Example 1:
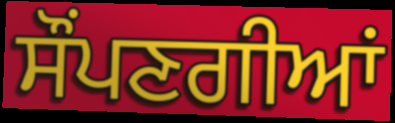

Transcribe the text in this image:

ਸੌਂਪਣਗੀਆਂ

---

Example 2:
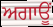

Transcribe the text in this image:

ਅਗਾਊਂ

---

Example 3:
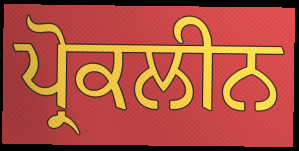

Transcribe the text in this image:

ਪ੍ਰੋਕਲੀਨ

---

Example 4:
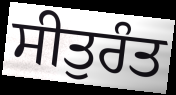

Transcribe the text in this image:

ਸੀਤੁਰੰਤ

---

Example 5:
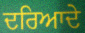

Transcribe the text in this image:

ਦਰਿਆਦੇ